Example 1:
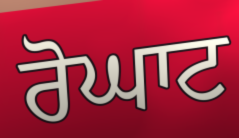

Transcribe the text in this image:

ਰੋਘਾਟ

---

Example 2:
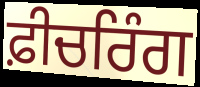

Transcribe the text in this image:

ਫ਼ੀਚਰਿੰਗ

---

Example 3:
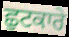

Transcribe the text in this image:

ਛੁਟਕਾਰੇ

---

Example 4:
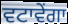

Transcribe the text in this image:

ਵਟਾਵੇਂਗਾ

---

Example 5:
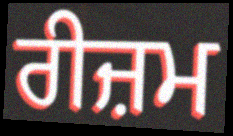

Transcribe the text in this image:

ਰੀਜ਼ਮ